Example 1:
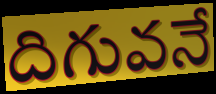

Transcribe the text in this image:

దిగువనే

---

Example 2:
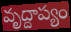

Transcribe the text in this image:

వృద్దాప్యం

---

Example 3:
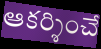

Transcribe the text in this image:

ఆకర్శించే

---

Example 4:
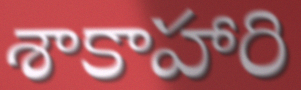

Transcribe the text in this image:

శాకాహారి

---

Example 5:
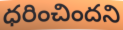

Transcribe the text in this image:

ధరించిందని